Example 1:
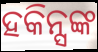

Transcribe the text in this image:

ହକିନ୍ସଙ୍କ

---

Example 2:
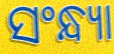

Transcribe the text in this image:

ସଂନ୍ଧ୍ଯା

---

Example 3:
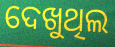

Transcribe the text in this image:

ଦେଖୁଥିଲ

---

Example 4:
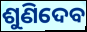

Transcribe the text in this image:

ଶୁଣିଦେବ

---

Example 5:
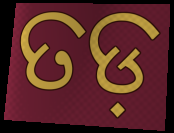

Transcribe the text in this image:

ତଡ଼